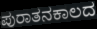
ಪುರಾತನಕಾಲದ